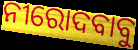
ନୀରୋଦବାବୁ